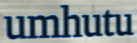
umhutu